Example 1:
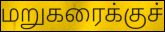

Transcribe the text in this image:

மறுகரைக்குச்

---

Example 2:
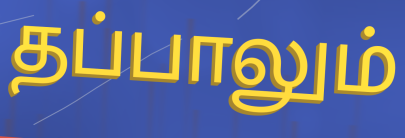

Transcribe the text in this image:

தப்பாலும்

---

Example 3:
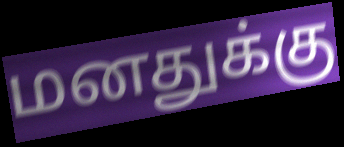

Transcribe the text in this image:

மனதுக்கு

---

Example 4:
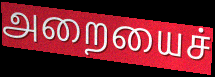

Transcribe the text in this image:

அறையைச்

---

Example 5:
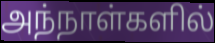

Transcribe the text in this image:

அந்நாள்களில்